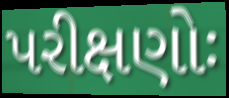
પરીક્ષણોઃ